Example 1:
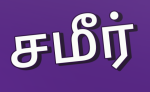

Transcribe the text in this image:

சமீர்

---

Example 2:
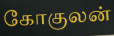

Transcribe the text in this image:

கோகுலன்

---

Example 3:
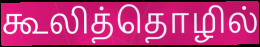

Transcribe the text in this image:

கூலித்தொழில்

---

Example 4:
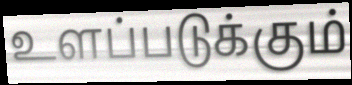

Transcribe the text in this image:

உளப்படுக்கும்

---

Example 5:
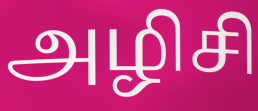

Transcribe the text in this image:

அழிசி